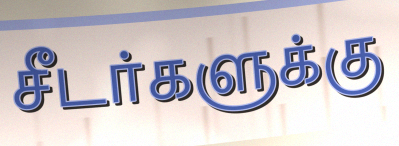
சீடர்களுக்கு